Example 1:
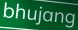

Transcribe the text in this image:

bhujang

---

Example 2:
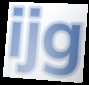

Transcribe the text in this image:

ijg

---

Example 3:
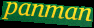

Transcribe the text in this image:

panman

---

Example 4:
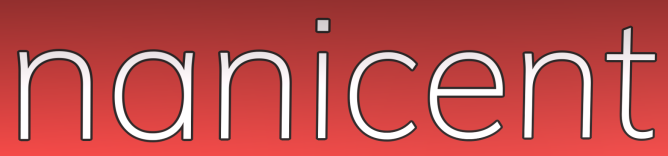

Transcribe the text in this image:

nanicent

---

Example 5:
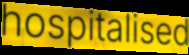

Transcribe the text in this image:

hospitalised